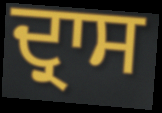
ਦ੍ਰਾਸ